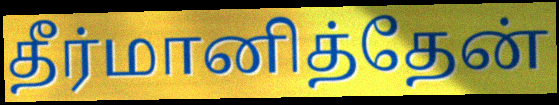
தீர்மானித்தேன்